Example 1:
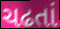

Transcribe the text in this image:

ચઢતાં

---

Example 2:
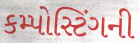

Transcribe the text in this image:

કમ્પોસ્ટિંગની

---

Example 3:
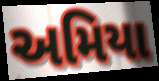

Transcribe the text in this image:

અમિયા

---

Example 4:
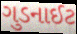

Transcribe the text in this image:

ગુડનાઈટ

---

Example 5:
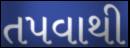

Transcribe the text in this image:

તપવાથી